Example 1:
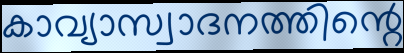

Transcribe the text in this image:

കാവ്യാസ്വാദനത്തിന്റെ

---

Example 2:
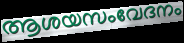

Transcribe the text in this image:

ആശയസംവേദനം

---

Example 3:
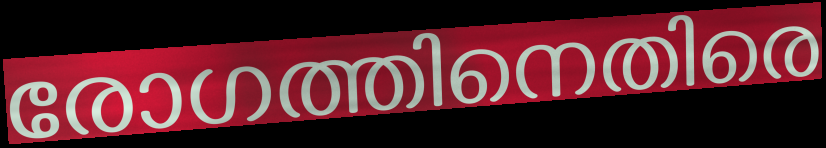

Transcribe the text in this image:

രോഗത്തിനെതിരെ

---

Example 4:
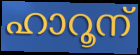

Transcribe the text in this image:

ഹാറൂന്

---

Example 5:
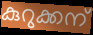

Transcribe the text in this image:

കുറുക്കന്